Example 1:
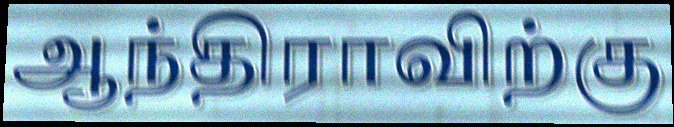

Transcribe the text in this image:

ஆந்திராவிற்கு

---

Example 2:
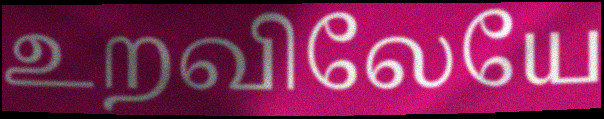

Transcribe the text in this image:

உறவிலேயே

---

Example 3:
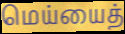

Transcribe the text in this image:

மெய்யைத்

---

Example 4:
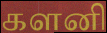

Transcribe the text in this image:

களனி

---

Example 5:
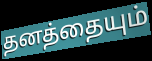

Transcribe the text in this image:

தனத்தையும்